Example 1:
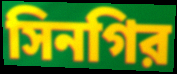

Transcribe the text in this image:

সিনগির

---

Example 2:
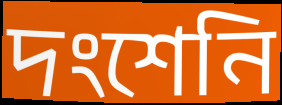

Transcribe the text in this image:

দংশেনি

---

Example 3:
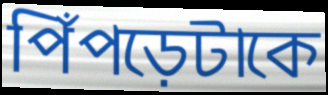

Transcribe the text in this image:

পিঁপড়েটাকে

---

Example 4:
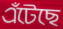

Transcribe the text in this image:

এঁটেছে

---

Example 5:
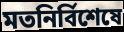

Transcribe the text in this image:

মতনির্বিশেষে